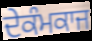
ਦੇਕੰਮਕਾਜ